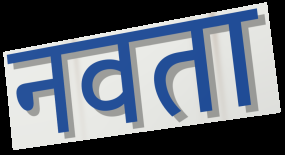
नवता